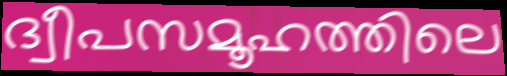
ദ്വീപസമൂഹത്തിലെ